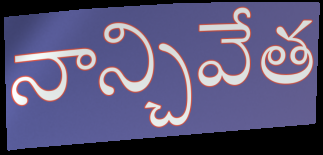
నాన్చివేత